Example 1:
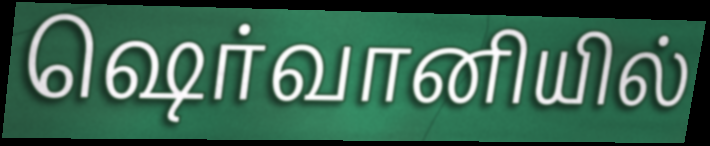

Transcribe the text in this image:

ஷெர்வானியில்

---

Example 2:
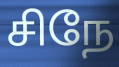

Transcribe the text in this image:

சிநே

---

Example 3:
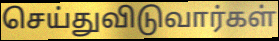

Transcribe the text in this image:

செய்துவிடுவார்கள்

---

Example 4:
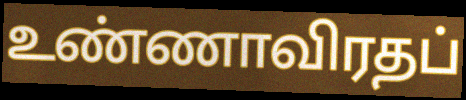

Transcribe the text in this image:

உண்ணாவிரதப்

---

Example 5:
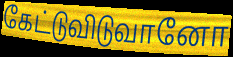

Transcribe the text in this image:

கேட்டுவிடுவானோ